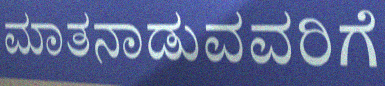
ಮಾತನಾಡುವವರಿಗೆ